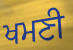
ਖਮਣੀ